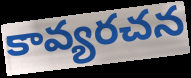
కావ్యరచన